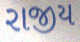
રાજીય